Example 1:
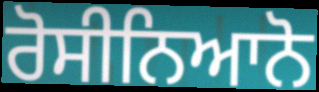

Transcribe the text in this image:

ਰੋਸੀਨਿਆਨੋ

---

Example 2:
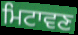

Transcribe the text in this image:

ਮਿਟਾਵਣ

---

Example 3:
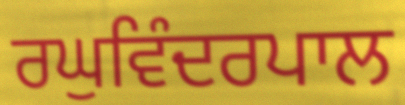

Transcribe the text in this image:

ਰਘੁਵਿੰਦਰਪਾਲ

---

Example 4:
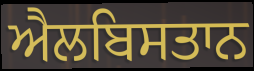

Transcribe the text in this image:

ਐਲਬਿਸਤਾਨ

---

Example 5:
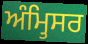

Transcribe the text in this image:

ਅੰਮ੍ਤਿਸਰ